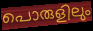
പൊരുളിലും